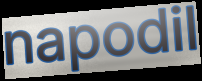
napodil